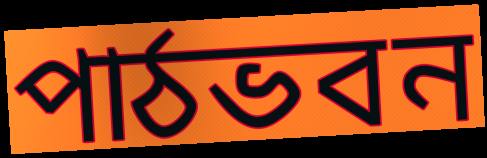
পাঠভবন